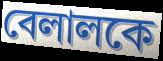
বেলালকে